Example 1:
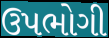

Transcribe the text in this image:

ઉપભોગી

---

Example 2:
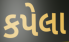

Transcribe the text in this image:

કપેલા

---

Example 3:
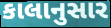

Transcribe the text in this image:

કાલાનુસાર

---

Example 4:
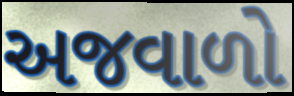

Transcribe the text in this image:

અજવાળો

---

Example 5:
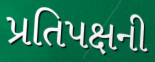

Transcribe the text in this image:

પ્રતિપક્ષની